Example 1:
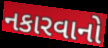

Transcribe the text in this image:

નકારવાનો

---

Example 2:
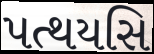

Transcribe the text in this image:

પત્થયસિ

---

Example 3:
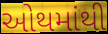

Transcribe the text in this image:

ઓથમાંથી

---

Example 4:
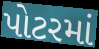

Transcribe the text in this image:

પોટરમાં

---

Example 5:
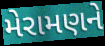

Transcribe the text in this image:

મેરામણને